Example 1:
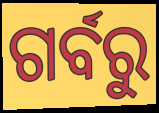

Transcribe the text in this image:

ଗର୍ବରୁ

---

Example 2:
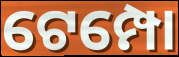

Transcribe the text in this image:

ଟେମ୍ପୋ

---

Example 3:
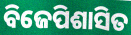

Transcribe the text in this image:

ବିଜେପିଶାସିତ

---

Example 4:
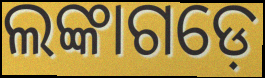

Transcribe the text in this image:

ଲଙ୍କାଗଡ଼େ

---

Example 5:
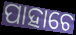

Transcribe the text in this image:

ପାହାଚେ